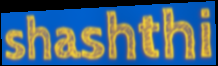
shashthi